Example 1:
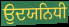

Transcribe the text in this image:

ਉਦਯਨਿਧੀ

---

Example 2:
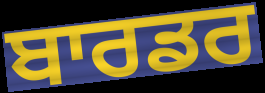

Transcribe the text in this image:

ਬਾਰਡਰ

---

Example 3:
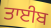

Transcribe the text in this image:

ਤਾਈਬ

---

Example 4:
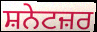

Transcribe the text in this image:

ਸ਼ਨੇਟਜ਼ਰ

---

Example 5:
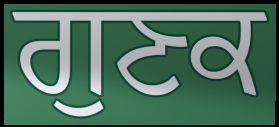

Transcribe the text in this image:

ਗੁਣਕ